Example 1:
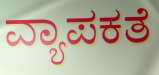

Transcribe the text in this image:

ವ್ಯಾಪಕತೆ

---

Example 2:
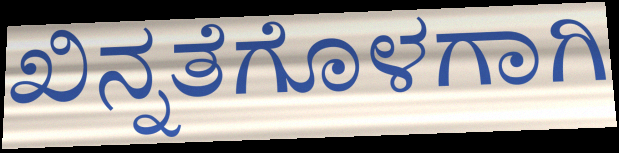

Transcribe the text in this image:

ಖಿನ್ನತೆಗೊಳಗಾಗಿ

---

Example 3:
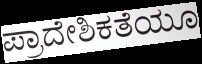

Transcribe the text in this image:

ಪ್ರಾದೇಶಿಕತೆಯೂ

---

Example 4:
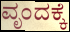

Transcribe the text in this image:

ವೃಂದಕ್ಕೆ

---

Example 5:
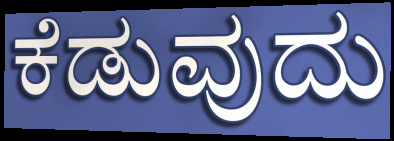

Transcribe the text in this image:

ಕೆಡುವುದು